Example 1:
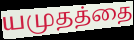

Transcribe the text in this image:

யமுதத்தை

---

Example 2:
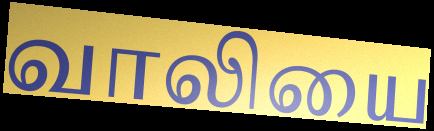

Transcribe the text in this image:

வாலியை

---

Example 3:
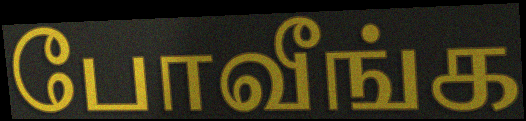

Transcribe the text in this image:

போவீங்க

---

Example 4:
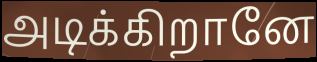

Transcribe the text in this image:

அடிக்கிறானே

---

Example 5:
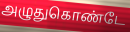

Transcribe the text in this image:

அழுதுகொண்டே